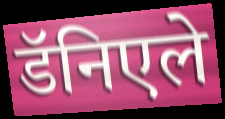
डॅनिएले